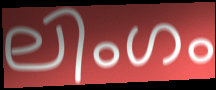
ലിംഗം